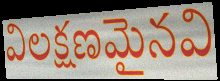
విలక్షణమైనవి